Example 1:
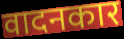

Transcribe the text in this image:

वादनकार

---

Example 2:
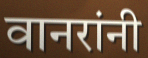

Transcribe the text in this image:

वानरांनी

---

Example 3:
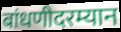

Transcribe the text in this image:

बांधणीदरम्यान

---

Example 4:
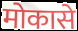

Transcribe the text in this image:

मोकासे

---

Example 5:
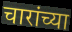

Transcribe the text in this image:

चारांच्या